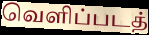
வெளிப்படத்